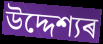
উদ্দেশ্যৰ